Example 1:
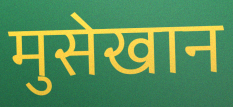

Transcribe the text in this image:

मुसेखान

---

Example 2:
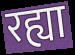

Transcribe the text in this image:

रह्या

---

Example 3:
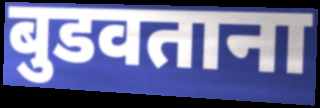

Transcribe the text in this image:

बुडवताना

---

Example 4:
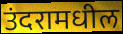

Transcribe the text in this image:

उंदरामधील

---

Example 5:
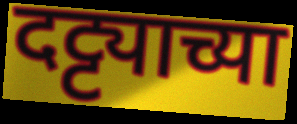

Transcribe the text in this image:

दट्ट्याच्या